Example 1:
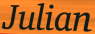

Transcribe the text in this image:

Julian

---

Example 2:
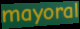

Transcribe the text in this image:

mayoral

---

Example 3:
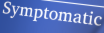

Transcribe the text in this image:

Symptomatic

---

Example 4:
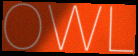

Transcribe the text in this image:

OWL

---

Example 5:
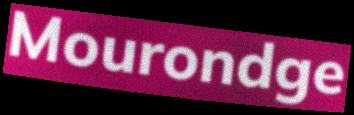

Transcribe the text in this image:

Mourondge